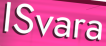
ISvara